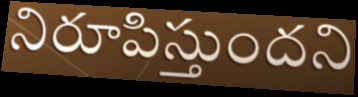
నిరూపిస్తుందని